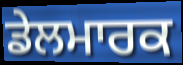
ਡੇਲਮਾਰਕ